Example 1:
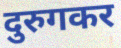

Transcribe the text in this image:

दुरुगकर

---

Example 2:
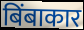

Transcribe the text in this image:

बिंबाकार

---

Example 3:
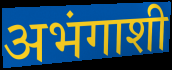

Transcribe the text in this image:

अभंगाशी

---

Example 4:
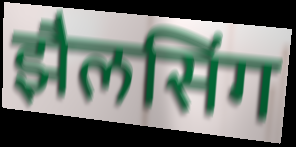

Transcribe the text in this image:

झैलसिंग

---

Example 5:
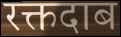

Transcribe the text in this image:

रक्तदाब